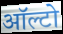
ऑल्टो